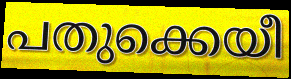
പതുക്കെയീ